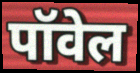
पॉवेल